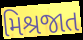
મિશ્રજાત